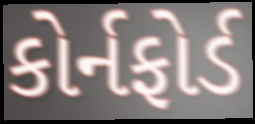
કોર્નફોર્ડ